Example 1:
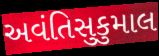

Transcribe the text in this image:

અવંતિસુકુમાલ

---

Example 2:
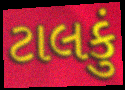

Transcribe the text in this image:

ટાલકું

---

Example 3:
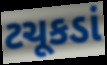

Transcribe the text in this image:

ટચૂકડાં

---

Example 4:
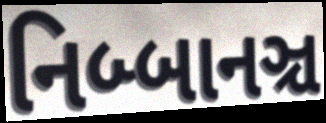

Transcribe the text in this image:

નિબ્બાનઞ્ચ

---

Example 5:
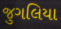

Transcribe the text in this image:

જુગલિયા